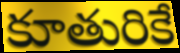
కూతురికే